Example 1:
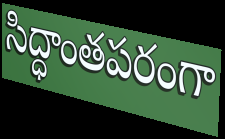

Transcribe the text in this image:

సిద్ధాంతపరంగా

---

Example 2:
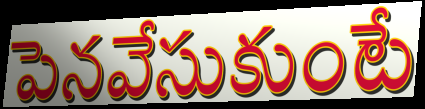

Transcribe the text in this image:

పెనవేసుకుంటే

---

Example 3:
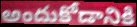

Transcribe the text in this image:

అందుకోడానికి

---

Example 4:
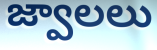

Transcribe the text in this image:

జ్వాలలు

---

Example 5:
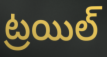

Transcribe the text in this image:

ట్రయిల్